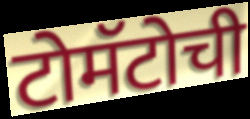
टोमॅटोची